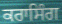
ਕਰਾਸਿੰਗ